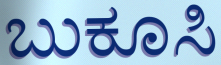
ಬುಕೂಸಿ